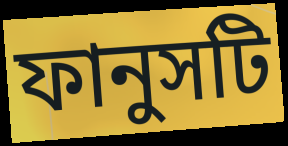
ফানুসটি